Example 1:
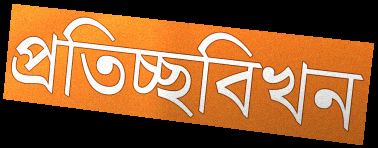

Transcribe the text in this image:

প্ৰতিচ্ছবিখন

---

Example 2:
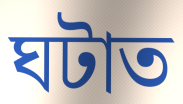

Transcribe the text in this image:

ঘটাত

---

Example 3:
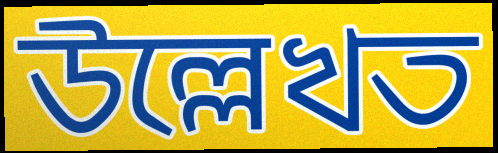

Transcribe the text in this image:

উল্লেখত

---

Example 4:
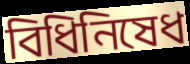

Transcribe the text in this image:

বিধিনিষেধ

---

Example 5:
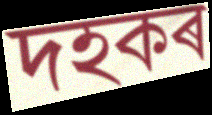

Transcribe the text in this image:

দহকৰ